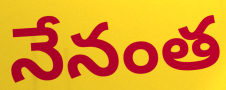
నేనంత